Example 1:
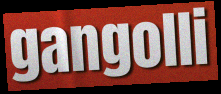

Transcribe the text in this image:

gangolli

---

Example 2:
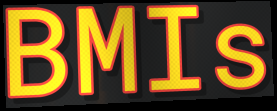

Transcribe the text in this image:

BMIs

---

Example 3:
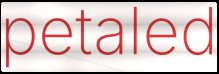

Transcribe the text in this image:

petaled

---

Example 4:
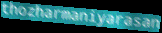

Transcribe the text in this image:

thozharmaniyarasan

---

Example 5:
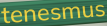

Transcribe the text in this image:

tenesmus